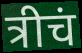
त्रीचं